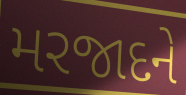
મરજાદને